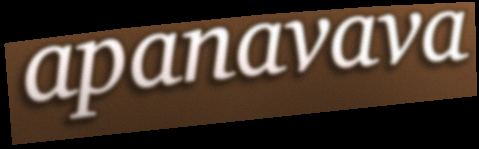
apanavava